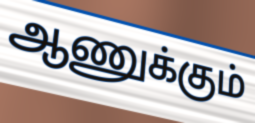
ஆணுக்கும்